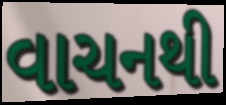
વાચનથી